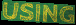
USING